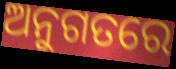
ଅନୁଗତରେ